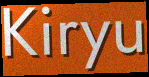
Kiryu